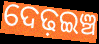
ଦେଢ଼ଇଞ୍ଚ